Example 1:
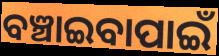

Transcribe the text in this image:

ବଞ୍ଚାଇବାପାଇଁ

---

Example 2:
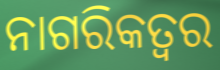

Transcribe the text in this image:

ନାଗରିକତ୍ଵର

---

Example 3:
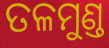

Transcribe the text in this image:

ତଳମୁଣ୍ଡ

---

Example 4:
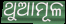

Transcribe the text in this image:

ଥୁଆମୂଳ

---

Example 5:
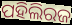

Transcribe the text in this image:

ପହିଲିରଜ